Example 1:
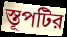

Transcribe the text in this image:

স্তূপটির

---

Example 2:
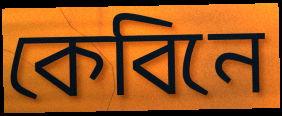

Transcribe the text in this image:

কেবিনে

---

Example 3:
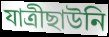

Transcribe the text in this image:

যাত্রীছাউনি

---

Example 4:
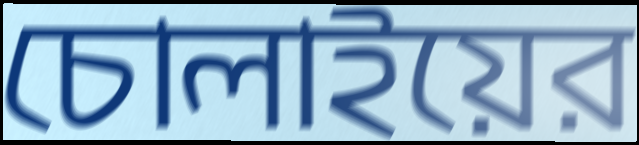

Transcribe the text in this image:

চোলাইয়ের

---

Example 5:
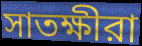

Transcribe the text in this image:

সাতক্ষীরা